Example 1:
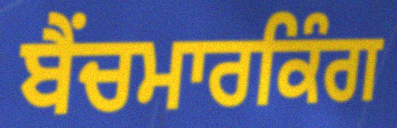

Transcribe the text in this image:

ਬੈਂਚਮਾਰਕਿੰਗ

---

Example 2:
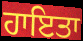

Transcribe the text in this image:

ਹਾਇਤਾ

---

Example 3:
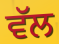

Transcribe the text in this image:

ਵੱਲ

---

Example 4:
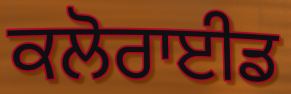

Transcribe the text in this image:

ਕਲੋਰਾਈਡ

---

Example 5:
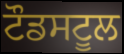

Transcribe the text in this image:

ਟੌਡਸਟੂਲ